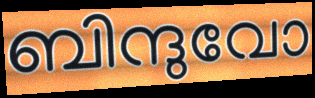
ബിന്ദുവോ